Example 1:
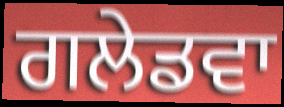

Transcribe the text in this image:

ਗਲੇਡਵਾ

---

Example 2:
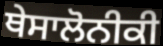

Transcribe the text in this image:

ਥੇਸਾਲੋਨੀਕੀ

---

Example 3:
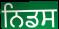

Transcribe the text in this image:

ਨਿਡਸ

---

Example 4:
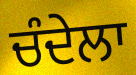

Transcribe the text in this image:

ਚੰਦੇਲਾ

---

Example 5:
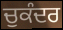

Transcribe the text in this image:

ਚੁਕੰਦਰ